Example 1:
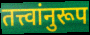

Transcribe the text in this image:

तत्त्वांनुरूप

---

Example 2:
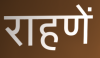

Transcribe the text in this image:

राहणें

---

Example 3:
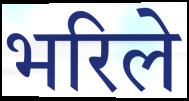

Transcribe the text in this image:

भरिले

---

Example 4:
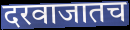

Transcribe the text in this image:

दरवाजातच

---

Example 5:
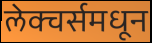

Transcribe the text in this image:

लेक्चर्समधून